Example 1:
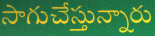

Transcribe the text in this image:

సాగుచేస్తున్నారు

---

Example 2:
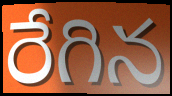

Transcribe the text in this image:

రేగిన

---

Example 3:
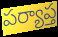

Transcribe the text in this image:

పర్యాప్త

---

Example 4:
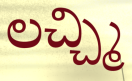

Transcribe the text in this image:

లచ్చ్మి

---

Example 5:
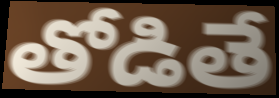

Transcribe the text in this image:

తోడితే